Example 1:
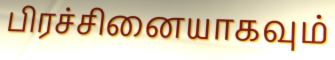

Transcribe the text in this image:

பிரச்சினையாகவும்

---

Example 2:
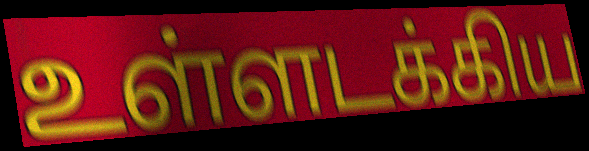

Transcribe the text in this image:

உள்ளடக்கிய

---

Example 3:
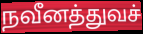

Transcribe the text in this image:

நவீனத்துவச்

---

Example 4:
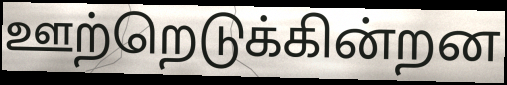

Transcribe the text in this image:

ஊற்றெடுக்கின்றன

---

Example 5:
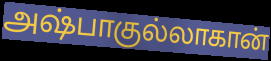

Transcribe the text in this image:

அஷ்பாகுல்லாகான்